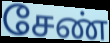
சேண்